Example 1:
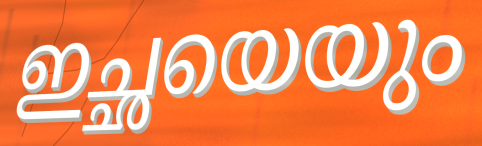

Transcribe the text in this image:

ഇച്ഛയെയും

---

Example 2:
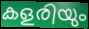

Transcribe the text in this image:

കളരിയും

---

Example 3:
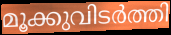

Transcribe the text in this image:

മൂക്കുവിടർത്തി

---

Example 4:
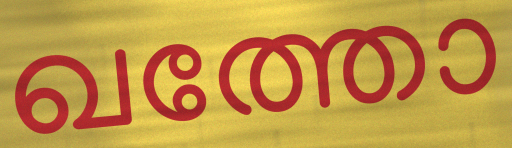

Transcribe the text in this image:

ഖത്തോ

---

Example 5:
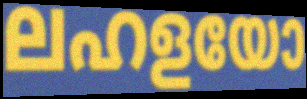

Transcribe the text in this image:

ലഹളയോ